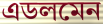
এডলমেন